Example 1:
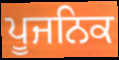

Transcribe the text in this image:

ਪੂਜਨਿਕ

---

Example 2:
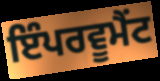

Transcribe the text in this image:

ਇੰਪਰਵੂਮੈਂਟ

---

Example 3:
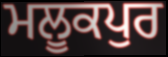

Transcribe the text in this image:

ਮਲੂਕਪੁਰ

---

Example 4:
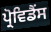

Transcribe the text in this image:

ਪ੍ਰੋਵਿਡੈਂਸ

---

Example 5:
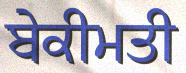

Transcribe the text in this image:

ਬੇਕੀਮਤੀ